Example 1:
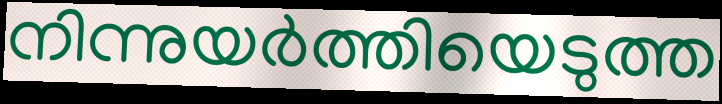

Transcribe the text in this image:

നിന്നുയർത്തിയെടുത്ത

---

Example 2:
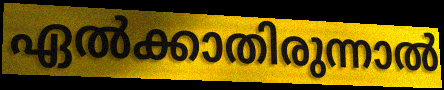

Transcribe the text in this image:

ഏൽക്കാതിരുന്നാൽ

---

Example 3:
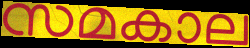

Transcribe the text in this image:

സമകാല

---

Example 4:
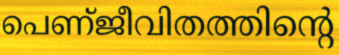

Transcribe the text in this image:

പെണ്ജീവിതത്തിന്റെ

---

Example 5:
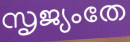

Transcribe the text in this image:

സൃജ്യംതേ